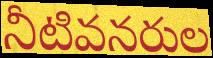
నీటివనరుల